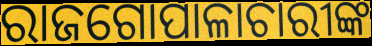
ରାଜଗୋପାଳାଚାରୀଙ୍କ